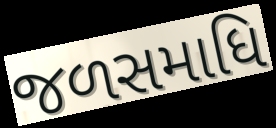
જળસમાધિ